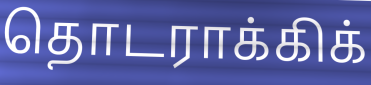
தொடராக்கிக்